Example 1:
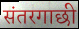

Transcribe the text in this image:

संतरगाछी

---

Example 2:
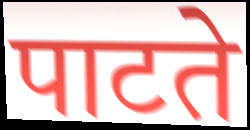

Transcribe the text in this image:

पाटते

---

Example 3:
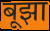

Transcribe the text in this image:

बूझा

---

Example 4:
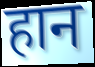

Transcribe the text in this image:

हान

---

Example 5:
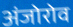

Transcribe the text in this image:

अंजोरोव